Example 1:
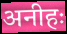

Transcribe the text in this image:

अनीहः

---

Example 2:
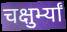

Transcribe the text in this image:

चक्षुर्भ्यां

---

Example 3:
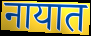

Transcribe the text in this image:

नायात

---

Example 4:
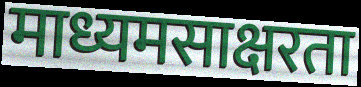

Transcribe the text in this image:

माध्यमसाक्षरता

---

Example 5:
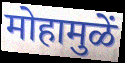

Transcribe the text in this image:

मोहामुळें